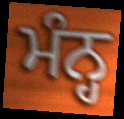
ਮੰਨ੍ਹ